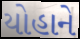
યોહાને